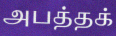
அபத்தக்